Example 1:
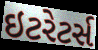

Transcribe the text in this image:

ઇટરેટર્સ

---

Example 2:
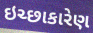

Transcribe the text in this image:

ઇચ્છાકારેણ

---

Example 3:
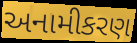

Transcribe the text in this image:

અનામીકરણ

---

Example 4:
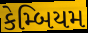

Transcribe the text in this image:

કેમ્બિયમ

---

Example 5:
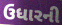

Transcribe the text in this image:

ઉધારની